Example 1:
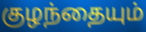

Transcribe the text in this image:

குழந்தையும்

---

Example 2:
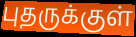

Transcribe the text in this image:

புதருக்குள்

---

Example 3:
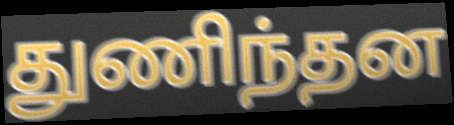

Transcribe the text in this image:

துணிந்தன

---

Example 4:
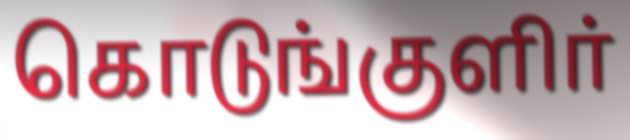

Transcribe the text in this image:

கொடுங்குளிர்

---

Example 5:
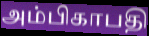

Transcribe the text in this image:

அம்பிகாபதி